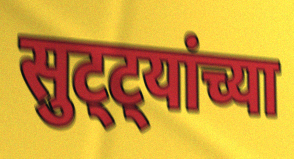
सुट्ट्यांच्या